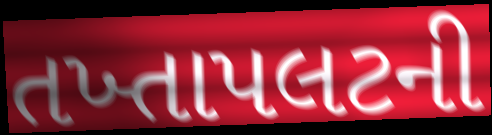
તખ્તાપલટની